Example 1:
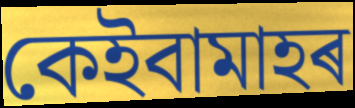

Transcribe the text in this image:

কেইবামাহৰ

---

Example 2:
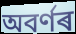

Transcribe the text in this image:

অবৰ্ণৰ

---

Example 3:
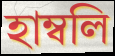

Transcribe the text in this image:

হাম্বলি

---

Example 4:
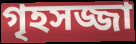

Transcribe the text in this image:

গৃহসজ্জা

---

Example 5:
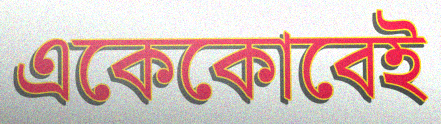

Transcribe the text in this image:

একেকোবেই